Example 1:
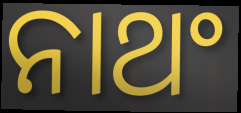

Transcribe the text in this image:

ନାଥଂ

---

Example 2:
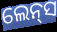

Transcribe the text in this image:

ଲେନ୍‌ସ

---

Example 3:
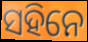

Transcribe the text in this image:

ସହିନେ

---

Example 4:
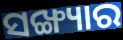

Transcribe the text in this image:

ସଙ୍ଖ୍ୟାର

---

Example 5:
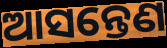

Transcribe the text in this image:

ଆସନ୍ତେଣ